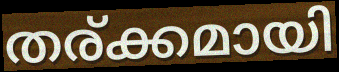
തര്ക്കമായി